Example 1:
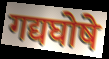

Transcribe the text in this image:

गद्यघोषे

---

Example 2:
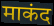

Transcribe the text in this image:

माकंद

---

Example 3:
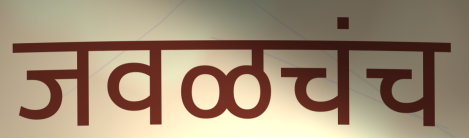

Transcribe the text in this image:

जवळचंच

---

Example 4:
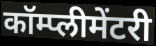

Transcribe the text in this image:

कॉम्प्लीमेंटरी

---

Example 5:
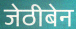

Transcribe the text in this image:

जेठीबेन